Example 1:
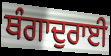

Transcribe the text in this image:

ਥੰਗਾਦੁਰਾਈ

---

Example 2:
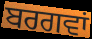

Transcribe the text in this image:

ਬਰਗਵਾਂ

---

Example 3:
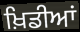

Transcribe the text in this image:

ਖ਼ਿਡੀਆਂ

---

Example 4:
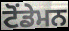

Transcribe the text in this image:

ਟੋਂਡੇਮਨ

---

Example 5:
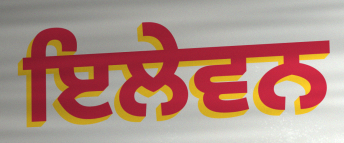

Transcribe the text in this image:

ਇਲੇਵਨ